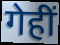
गेहीं